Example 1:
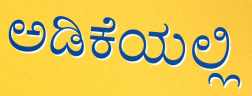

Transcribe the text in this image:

ಅಡಿಕೆಯಲ್ಲಿ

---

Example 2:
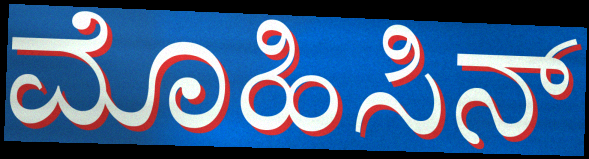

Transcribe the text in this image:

ಮೊಹಿಸಿನ್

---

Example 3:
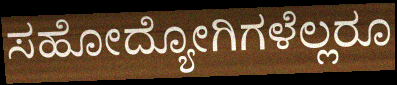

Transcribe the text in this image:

ಸಹೋದ್ಯೋಗಿಗಳೆಲ್ಲರೂ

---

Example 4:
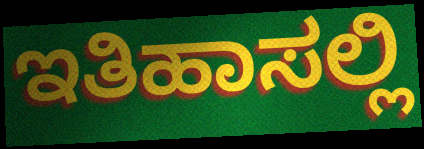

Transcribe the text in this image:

ಇತಿಹಾಸಲ್ಲಿ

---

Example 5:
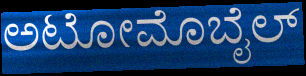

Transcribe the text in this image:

ಅಟೋಮೊಬೈಲ್